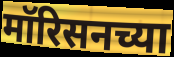
मॉरिसनच्या